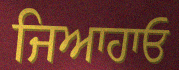
ਜਿਆਹਾਓ